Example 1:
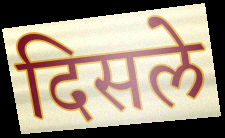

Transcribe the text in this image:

दिसले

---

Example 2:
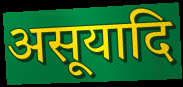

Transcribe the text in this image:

असूयादि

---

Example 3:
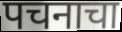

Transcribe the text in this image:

पचनाचा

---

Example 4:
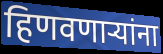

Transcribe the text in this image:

हिणवणाऱ्यांना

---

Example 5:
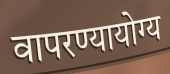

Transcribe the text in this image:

वापरण्यायोग्य